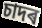
চাদৰ